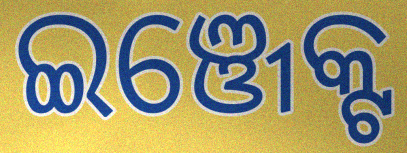
ଇଞ୍ଜେକ୍ଟ